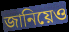
জানিয়েও